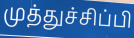
முத்துச்சிப்பி